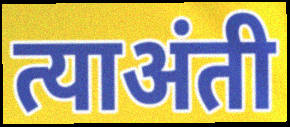
त्याअंती